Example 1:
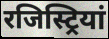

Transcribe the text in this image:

रजिस्ट्रियां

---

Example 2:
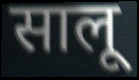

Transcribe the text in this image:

सालू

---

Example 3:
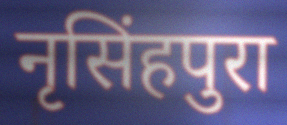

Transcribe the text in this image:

नृसिंहपुरा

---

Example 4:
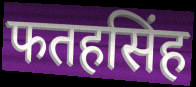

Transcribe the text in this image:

फतहसिंह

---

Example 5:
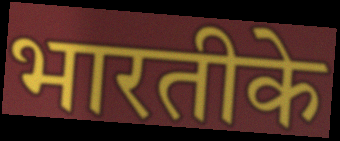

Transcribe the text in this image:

भारतीके